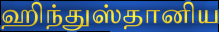
ஹிந்துஸ்தானிய